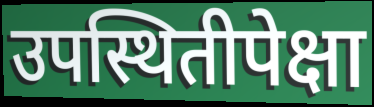
उपस्थितीपेक्षा